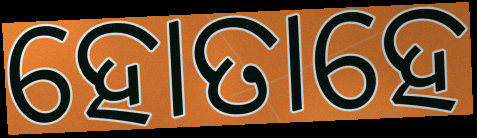
ହୋତାହେ